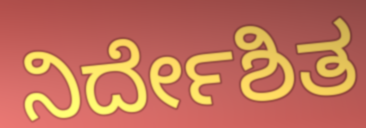
ನಿರ್ದೇಶಿತ